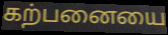
கற்பனையை